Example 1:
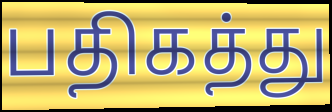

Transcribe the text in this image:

பதிகத்து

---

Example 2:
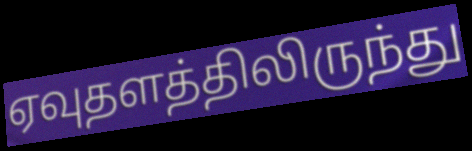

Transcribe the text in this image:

ஏவுதளத்திலிருந்து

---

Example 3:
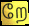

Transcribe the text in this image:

றே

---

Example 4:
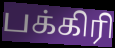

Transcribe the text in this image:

பக்கிரி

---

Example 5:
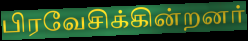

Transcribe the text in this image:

பிரவேசிக்கின்றனர்